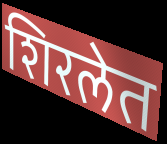
शिरलेत